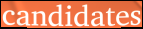
candidates